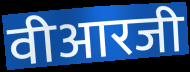
वीआरजी